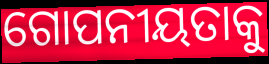
ଗୋପନୀୟତାକୁ